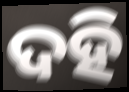
ଦହି